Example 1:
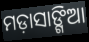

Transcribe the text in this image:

ମଡ଼ାସାଙ୍ଗିଆ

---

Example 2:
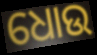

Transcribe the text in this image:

ଧୋଉ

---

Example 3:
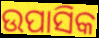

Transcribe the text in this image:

ଉପାସିକ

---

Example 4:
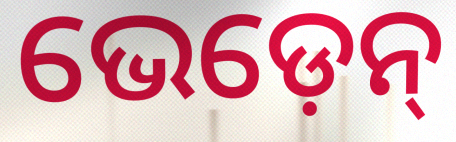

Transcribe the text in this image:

ଭେଡ଼େନ୍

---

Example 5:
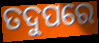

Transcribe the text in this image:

ତଦୁପରେ